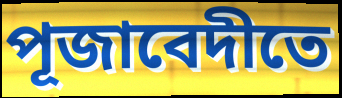
পূজাবেদীতে